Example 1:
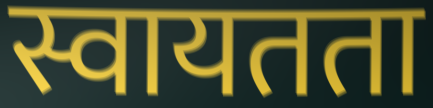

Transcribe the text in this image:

स्वायतता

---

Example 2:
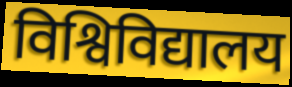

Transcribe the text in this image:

विश्विविद्यालय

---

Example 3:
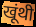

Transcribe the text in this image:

खूंथी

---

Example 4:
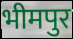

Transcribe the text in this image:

भीमपुर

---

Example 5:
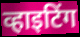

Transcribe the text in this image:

व्हाइटिंग